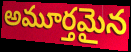
అమూర్తమైన